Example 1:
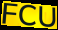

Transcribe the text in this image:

FCU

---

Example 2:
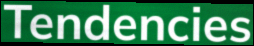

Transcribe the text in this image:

Tendencies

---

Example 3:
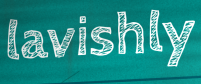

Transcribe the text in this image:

lavishly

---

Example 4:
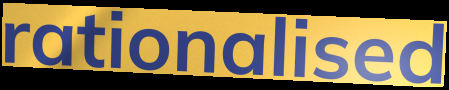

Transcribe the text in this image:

rationalised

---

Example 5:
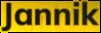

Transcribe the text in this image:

Jannik